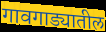
गावगाड्यातील